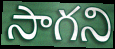
సాగని